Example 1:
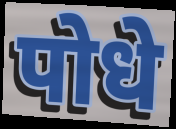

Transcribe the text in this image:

पोधे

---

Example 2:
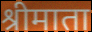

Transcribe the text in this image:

श्रीमाता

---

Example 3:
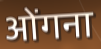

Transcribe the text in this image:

ओंगना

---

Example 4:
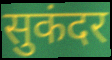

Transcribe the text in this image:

सुकंदर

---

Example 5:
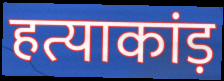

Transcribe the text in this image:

हत्याकांड़